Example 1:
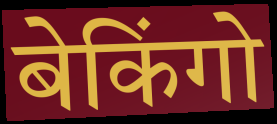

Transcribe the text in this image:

बेकिंगो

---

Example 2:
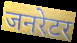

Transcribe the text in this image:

जनरेटर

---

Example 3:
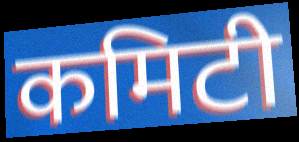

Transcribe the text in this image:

कमिटी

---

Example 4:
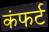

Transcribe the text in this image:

कंफर्ट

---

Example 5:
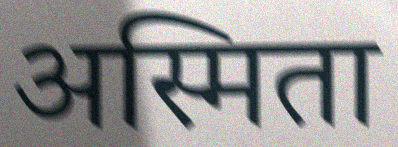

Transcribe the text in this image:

अस्मिता